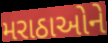
મરાઠાઓને